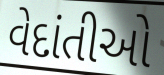
વેદાંતીઓ